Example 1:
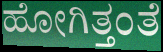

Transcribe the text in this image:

ಹೋಗಿತ್ತಂತೆ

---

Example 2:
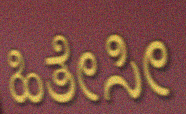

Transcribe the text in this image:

ಹಿತೇಸೀ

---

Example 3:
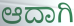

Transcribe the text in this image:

ಆದಾಗಿ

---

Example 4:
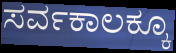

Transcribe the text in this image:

ಸರ್ವಕಾಲಕ್ಕೂ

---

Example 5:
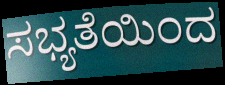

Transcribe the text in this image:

ಸಭ್ಯತೆಯಿಂದ